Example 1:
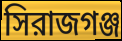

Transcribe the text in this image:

সিরাজগঞ্জ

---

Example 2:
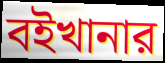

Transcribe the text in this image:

বইখানার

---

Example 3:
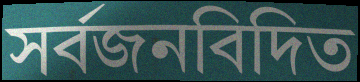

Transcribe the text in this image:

সর্বজনবিদিত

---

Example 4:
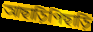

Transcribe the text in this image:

আছাড়িপিছাড়ি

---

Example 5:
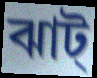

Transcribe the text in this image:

ঝাট্